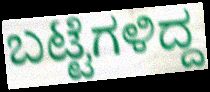
ಬಟ್ಟೆಗಳಿದ್ದ